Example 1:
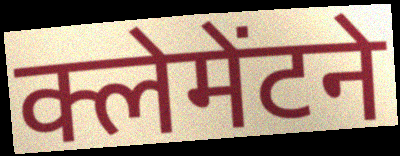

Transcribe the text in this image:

क्लेमेंटने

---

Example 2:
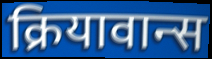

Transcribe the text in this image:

क्रियावान्स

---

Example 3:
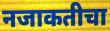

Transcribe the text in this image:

नजाकतीचा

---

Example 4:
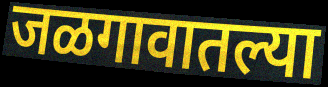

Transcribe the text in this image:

जळगावातल्या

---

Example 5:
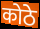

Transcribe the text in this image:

कोठे